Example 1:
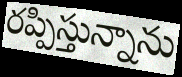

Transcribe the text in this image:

రప్పిస్తున్నాను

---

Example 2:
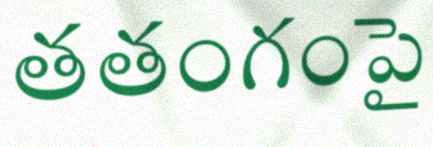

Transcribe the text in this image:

తతంగంపై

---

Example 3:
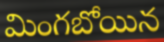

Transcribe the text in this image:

మింగబోయిన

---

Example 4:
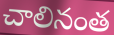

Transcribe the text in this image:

చాలినంత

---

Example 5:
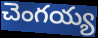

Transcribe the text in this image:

చెంగయ్య